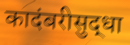
कादंबरीसुद्धा